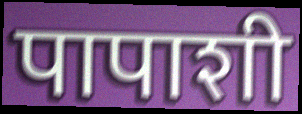
पापाशी